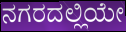
ನಗರದಲ್ಲಿಯೇ